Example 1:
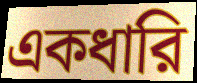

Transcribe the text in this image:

একধারি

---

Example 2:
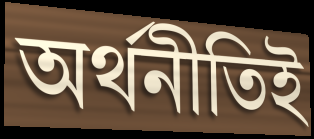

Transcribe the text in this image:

অর্থনীতিই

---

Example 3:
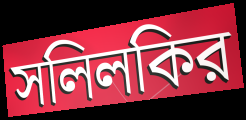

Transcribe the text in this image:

সলিলকির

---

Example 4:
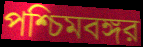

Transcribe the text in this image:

পশ্চিমবঙ্গর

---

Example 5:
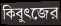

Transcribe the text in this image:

কিবুৎজের